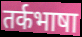
तर्कभाषा